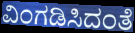
ವಿಂಗಡಿಸಿದಂತೆ